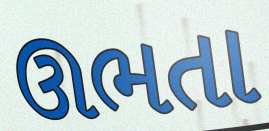
ઊભતા